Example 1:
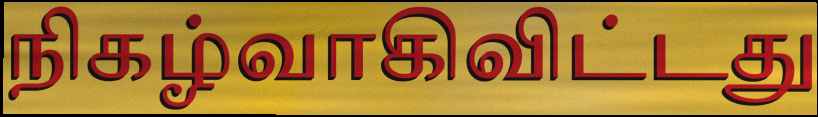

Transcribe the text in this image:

நிகழ்வாகிவிட்டது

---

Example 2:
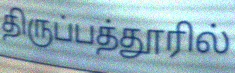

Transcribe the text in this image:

திருப்பத்தூரில்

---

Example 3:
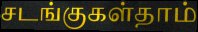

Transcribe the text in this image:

சடங்குகள்தாம்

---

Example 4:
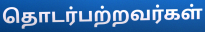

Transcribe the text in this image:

தொடர்பற்றவர்கள்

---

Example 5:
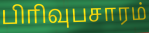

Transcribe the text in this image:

பிரிவுபசாரம்